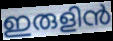
ഇരുളിൻ